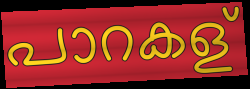
പാറകള്